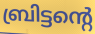
ബ്രിട്ടന്റെ